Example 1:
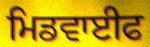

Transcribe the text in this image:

ਮਿਡਵਾਈਫ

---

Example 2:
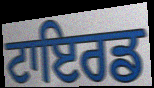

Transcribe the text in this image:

ਟਾਇਰਡ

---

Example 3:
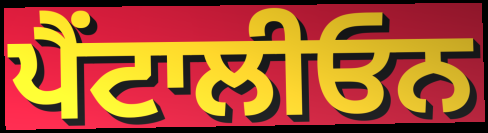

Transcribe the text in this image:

ਪੈਂਟਾਲੀਓਨ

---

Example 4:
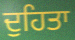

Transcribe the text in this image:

ਦੁਹਿਤਾ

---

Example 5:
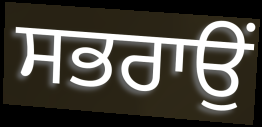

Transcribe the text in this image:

ਸਭਰਾਉਂ